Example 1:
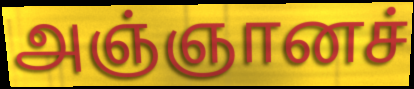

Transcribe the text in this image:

அஞ்ஞானச்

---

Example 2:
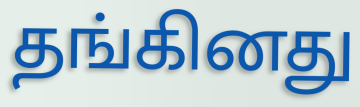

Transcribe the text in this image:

தங்கினது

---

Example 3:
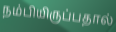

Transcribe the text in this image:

நம்பியிருப்பதால்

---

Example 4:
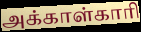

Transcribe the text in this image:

அக்காள்காரி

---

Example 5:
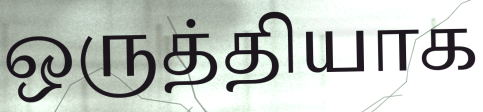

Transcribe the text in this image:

ஒருத்தியாக